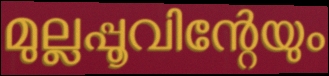
മുല്ലപ്പൂവിന്റേയും